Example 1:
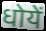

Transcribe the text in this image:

धोयें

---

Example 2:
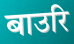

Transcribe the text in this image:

बाउरि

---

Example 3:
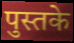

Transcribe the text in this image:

पुस्‍तके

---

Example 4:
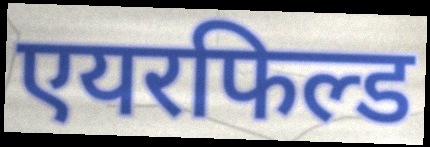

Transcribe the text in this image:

एयरफिल्ड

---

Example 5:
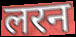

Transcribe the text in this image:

लरन